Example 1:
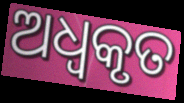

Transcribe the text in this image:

ଅଧ୍ବକୃତ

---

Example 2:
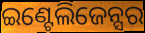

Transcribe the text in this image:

ଇଣ୍ଟେଲିଜେନ୍ସର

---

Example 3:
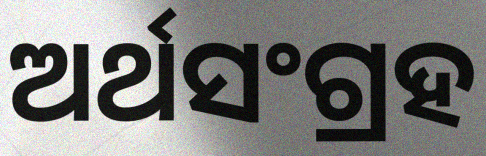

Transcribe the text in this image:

ଅର୍ଥସଂଗ୍ରହ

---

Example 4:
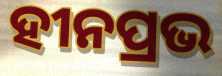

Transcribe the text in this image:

ହୀନପ୍ରଭ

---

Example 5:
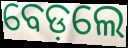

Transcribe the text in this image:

ବେଡ଼ଲେ